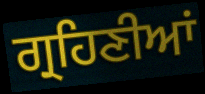
ਗ੍ਰਹਿਣੀਆਂ